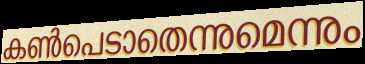
കൺപെടാതെന്നുമെന്നും